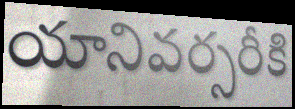
యానివర్సరీకి